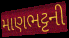
માણભટ્ટની